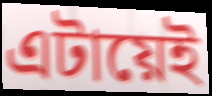
এটায়েই